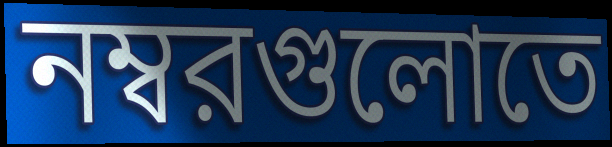
নম্বরগুলোতে